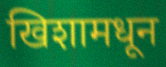
खिशामधून